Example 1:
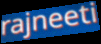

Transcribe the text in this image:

rajneeti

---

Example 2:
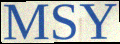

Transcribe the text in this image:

MSY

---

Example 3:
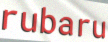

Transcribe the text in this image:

rubaru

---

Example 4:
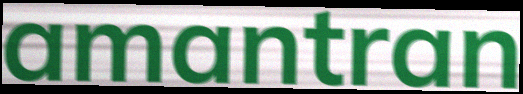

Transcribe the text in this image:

amantran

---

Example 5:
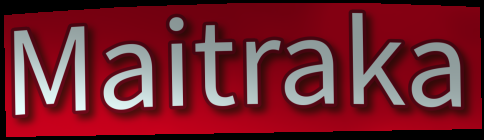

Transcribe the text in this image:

Maitraka